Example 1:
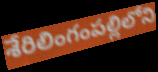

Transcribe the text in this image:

శేరిలింగంపల్లిలోని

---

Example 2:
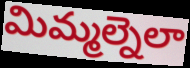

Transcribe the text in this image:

మిమ్మల్నెలా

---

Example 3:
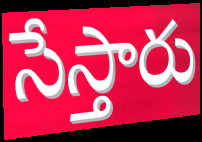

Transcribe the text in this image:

సేస్తారు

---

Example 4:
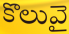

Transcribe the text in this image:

కొలువై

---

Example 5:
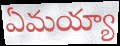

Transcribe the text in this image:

ఏమయ్యా